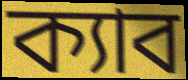
ক্যাব